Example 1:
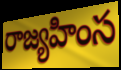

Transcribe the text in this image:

రాజ్యహింస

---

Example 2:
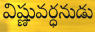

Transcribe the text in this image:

విష్ణువర్ధనుడు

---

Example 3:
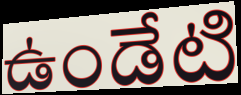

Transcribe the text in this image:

ఉండేటి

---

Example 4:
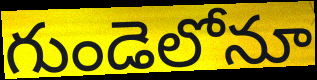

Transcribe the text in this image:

గుండెలోనూ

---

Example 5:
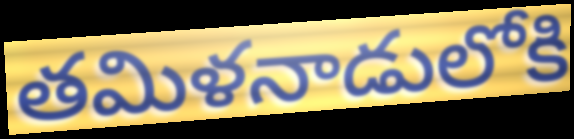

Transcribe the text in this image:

తమిళనాడులోకి